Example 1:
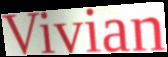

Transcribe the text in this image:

Vivian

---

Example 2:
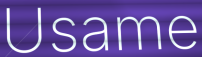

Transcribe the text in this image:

Usame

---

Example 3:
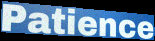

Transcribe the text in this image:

Patience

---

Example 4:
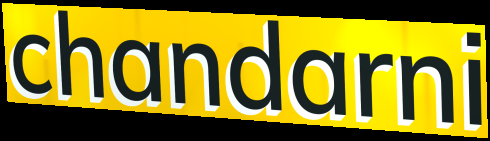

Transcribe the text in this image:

chandarni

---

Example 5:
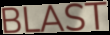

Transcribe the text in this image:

BLAST